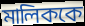
মালিককে